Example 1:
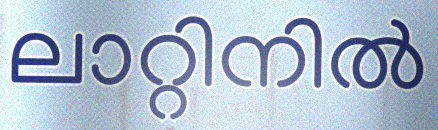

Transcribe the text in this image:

ലാറ്റിനിൽ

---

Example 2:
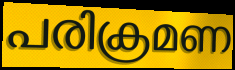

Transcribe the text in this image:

പരിക്രമണ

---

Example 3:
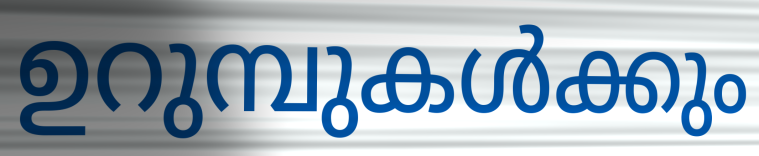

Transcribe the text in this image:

ഉറുമ്പുകൾക്കും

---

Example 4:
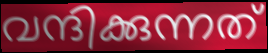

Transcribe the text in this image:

വന്ദിക്കുന്നത്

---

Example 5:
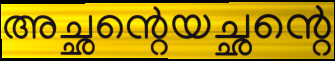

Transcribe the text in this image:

അച്ഛന്റെയച്ഛന്റെ